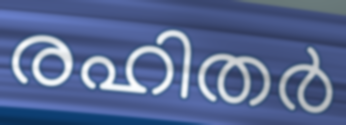
രഹിതർ